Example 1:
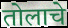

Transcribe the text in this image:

तोलाचे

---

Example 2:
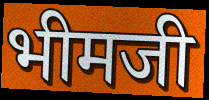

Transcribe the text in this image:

भीमजी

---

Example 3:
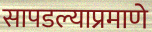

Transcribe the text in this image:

सापडल्याप्रमाणे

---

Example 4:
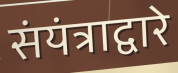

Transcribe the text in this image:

संयंत्राद्वारे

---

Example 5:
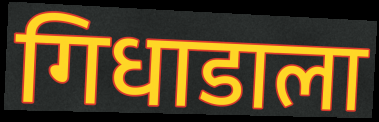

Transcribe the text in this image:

गिधाडाला